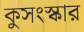
কুসংস্কার